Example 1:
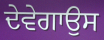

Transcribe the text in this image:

ਦੇਵੇਗਾਉਸ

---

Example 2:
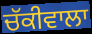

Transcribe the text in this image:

ਚੱਕੀਵਾਲਾ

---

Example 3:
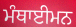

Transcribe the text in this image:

ਮੰਥਾਈਮਨ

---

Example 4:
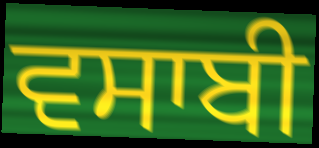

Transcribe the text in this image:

ਵਸਾਬੀ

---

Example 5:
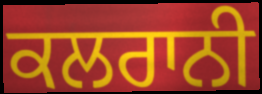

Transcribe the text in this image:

ਕਲਰਾਨੀ